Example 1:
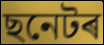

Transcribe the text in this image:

ছনেটৰ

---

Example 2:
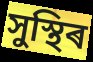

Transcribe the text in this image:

সুস্থিৰ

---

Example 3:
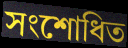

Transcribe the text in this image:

সংশোধিত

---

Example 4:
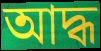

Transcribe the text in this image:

আদ্ধ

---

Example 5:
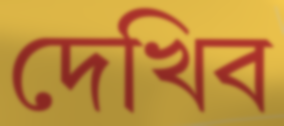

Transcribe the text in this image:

দেখিব